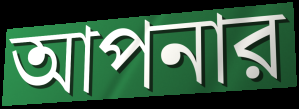
আপনার